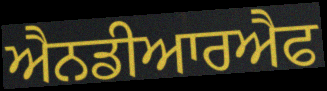
ਐਨਡੀਆਰਐਫ